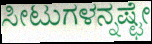
ಸೀಟುಗಳನ್ನಷ್ಟೇ